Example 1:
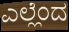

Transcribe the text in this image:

ಎಲ್ಲೆಂದ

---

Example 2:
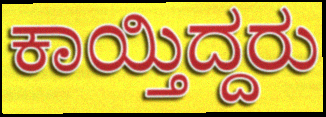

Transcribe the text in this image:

ಕಾಯ್ತಿದ್ದರು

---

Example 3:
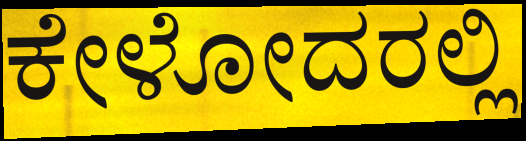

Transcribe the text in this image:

ಕೇಳೋದರಲ್ಲಿ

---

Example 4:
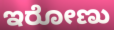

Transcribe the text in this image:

ಇರೋಣು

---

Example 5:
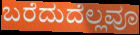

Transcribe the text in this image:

ಬರೆದುದೆಲ್ಲವೂ